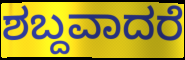
ಶಬ್ದವಾದರೆ